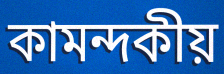
কামন্দকীয়